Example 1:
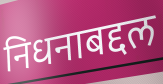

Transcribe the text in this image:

निधनाबद्दल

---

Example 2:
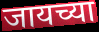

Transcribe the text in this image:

जायच्या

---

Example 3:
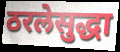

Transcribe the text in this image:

ठरलेसुद्धा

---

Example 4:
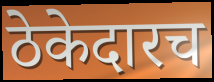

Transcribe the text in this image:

ठेकेदारच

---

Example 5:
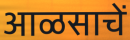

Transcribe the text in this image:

आळसाचें